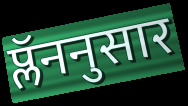
प्लॅननुसार